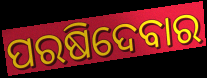
ପରଷିଦେବାର